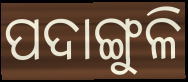
ପଦାଙ୍ଗୁଳି